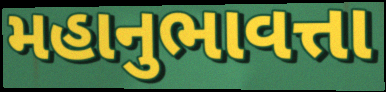
મહાનુભાવત્તા